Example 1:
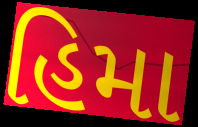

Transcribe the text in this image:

હિમા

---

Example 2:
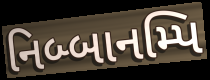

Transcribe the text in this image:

નિબ્બાનમ્પિ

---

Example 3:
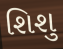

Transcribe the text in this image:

શિશુ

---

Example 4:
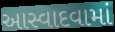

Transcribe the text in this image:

આસ્વાદવામાં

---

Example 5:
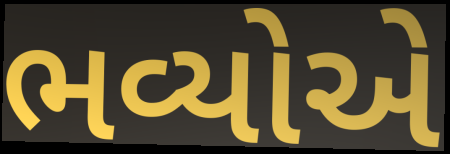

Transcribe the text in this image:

ભવ્યોએ